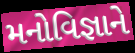
મનોવિજ્ઞાને